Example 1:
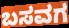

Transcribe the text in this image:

ಬಸವಗ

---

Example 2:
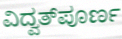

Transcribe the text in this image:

ವಿದ್ವತ್‌ಪೂರ್ಣ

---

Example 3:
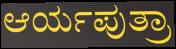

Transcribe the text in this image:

ಆರ್ಯಪುತ್ರಾ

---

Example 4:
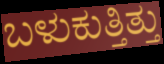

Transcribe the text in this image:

ಬಳುಕುತ್ತಿತ್ತು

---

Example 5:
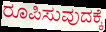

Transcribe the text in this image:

ರೂಪಿಸುವುದಕ್ಕೆ